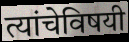
त्यांचेविषयी